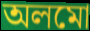
অলমো